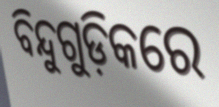
ବିନ୍ଦୁଗୁଡ଼ିକରେ